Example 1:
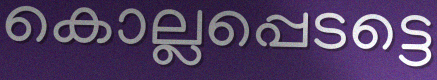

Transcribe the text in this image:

കൊല്ലപ്പെടട്ടെ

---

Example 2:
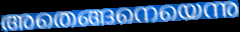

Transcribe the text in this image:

അതെങ്ങനെയെന്നു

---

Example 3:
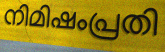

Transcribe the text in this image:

നിമിഷംപ്രതി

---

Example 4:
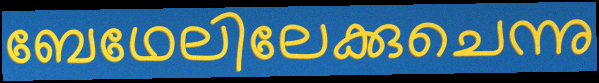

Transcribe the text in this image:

ബേഥേലിലേക്കുചെന്നു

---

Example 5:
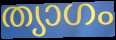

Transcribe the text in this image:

ത്യാഗം